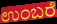
ಉಂಬರೆ